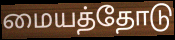
மையத்தோடு